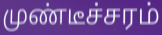
முண்டீச்சரம்